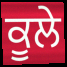
ਕੂਲੇ